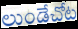
లుండేచోట